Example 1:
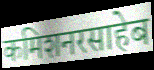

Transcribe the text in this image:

कमिशनरसाहेब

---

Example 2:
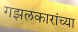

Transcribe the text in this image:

गझलकारांच्या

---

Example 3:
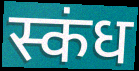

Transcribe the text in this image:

स्कंध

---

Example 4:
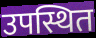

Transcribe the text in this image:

उपस्थित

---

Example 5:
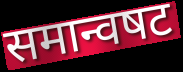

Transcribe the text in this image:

समान्वषट